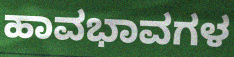
ಹಾವಭಾವಗಳ